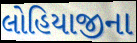
લોહિયાજીના